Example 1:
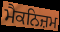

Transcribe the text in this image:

ਮੈਕਨਿਜ਼ਮ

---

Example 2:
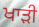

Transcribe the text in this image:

ਖਾੜੀ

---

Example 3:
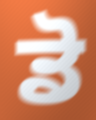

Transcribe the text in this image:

ਡੋ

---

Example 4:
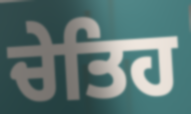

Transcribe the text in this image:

ਚੇਤਿਹ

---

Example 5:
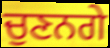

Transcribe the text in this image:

ਚੁਣਨਗੇ